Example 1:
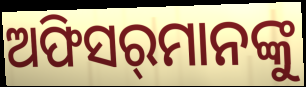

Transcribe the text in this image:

ଅଫିସର୍‌ମାନଙ୍କୁ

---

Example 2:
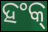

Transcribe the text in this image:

ହଂକ୍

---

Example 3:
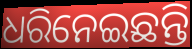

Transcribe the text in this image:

ଧରିନେଇଛନ୍ତି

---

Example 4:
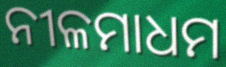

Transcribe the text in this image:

ନୀଳମାଧମ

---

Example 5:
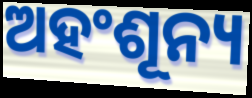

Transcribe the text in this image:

ଅହଂଶୂନ୍ୟ